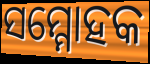
ସମ୍ମୋହକ